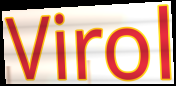
Virol